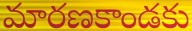
మారణకాండకు